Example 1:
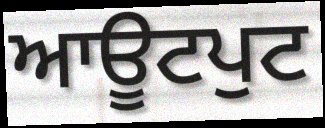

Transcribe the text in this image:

ਆਊਟਪੁਟ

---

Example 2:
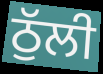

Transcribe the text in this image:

ਠੁੱਲੀ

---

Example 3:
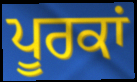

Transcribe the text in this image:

ਪੂਰਕਾਂ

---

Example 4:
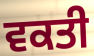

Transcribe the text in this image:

ਵਕਤੀ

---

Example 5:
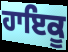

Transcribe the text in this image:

ਹਾਇਕੂ